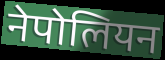
नेपोलियन